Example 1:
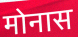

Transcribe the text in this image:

मोनास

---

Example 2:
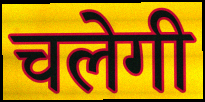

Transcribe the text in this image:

चलेगी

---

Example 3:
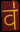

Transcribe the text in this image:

व॑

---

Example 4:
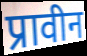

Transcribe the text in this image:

प्रावीन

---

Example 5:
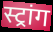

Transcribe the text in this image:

स्ट्रांग